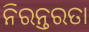
ନିରନ୍ତରତା